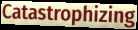
Catastrophizing